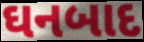
ઘનબાદ